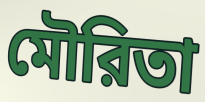
মৌরিতা